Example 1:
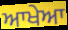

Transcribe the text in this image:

ਆਖੇਆ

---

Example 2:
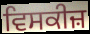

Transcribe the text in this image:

ਵਿਸਕੀਜ਼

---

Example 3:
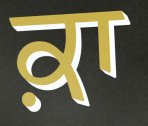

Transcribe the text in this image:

ਕ਼ਾ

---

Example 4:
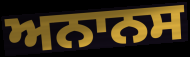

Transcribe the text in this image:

ਅਨਾਨਸ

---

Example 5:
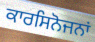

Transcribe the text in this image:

ਕਾਰਸਿਨੋਜਨਾਂ